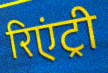
रिएंट्री